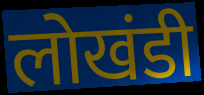
लोखंडी